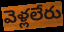
వెళ్లలేరు